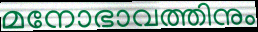
മനോഭാവത്തിനും